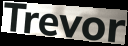
Trevor